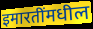
इमारतींमधील